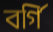
বর্গি